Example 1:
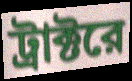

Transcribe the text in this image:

ট্রাক্টরে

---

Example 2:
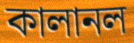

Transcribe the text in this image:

কালানল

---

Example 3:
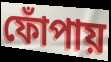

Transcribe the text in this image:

ফোঁপায়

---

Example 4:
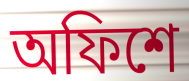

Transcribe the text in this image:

অফিশে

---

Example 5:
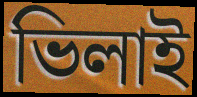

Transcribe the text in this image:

ভিলাই